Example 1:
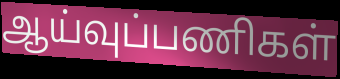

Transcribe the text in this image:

ஆய்வுப்பணிகள்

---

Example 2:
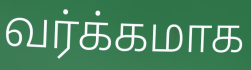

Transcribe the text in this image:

வர்க்கமாக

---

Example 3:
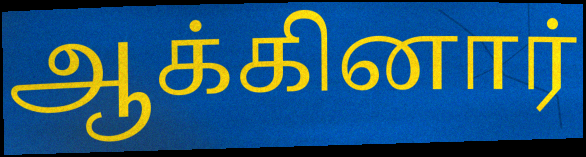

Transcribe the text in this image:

ஆக்கினார்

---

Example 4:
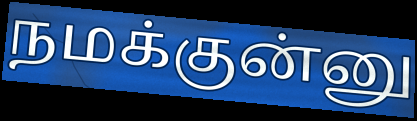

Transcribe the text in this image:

நமக்குன்னு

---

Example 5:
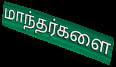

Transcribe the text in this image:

மாந்தர்களை